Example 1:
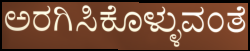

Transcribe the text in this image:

ಅರಗಿಸಿಕೊಳ್ಳುವಂತೆ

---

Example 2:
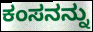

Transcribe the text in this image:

ಕಂಸನನ್ನು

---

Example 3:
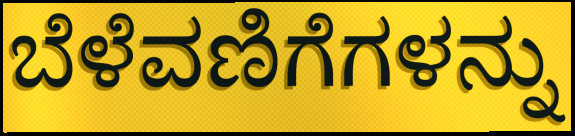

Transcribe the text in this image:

ಬೆಳೆವಣಿಗೆಗಳನ್ನು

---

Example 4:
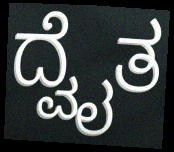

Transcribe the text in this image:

ದ್ವೈತ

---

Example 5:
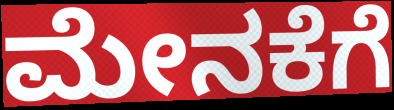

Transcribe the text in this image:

ಮೇನಕೆಗೆ